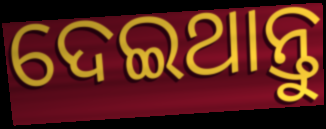
ଦେଇଥାନ୍ତୁ